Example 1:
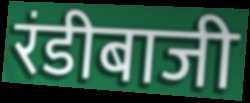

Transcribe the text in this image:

रंडीबाजी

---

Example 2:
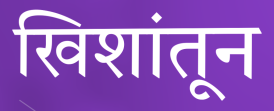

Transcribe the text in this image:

खिशांतून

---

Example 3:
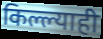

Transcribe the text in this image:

किल्ल्याही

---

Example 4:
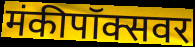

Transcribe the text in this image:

मंकीपॉक्सवर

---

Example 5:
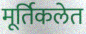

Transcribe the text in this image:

मूर्तिकलेत